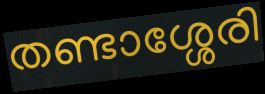
തണ്ടാശ്ശേരി